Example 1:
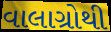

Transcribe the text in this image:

વાલાગ્રોથી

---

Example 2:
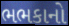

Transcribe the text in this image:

ભભકાનો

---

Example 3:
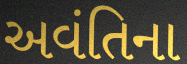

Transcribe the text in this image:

અવંતિના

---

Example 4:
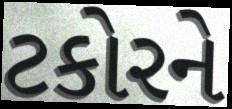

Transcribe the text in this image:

ટકોરને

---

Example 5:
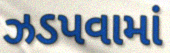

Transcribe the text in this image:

ઝડપવામાં